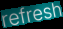
refresh